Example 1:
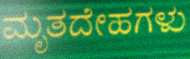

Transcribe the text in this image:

ಮೃತದೇಹಗಳು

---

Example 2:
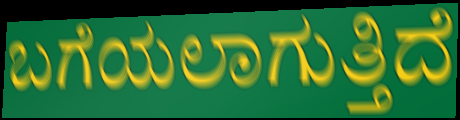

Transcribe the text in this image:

ಬಗೆಯಲಾಗುತ್ತಿದೆ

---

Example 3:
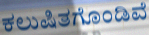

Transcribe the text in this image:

ಕಲುಷಿತಗೊಂಡಿವೆ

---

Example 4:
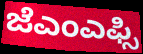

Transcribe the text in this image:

ಜೆಎಂಎಫ್ಸಿ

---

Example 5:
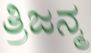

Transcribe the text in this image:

ತ್ರಿಜನ್ಮ